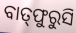
ବାତ୍‌ଫୁରୁସି